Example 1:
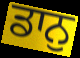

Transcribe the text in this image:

ਡਾਨੁ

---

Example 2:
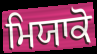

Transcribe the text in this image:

ਮਿਯਾਕੋ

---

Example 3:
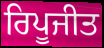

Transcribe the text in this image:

ਰਿਪੂਜੀਤ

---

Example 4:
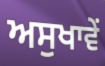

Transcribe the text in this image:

ਅਸੁਖਾਵੇਂ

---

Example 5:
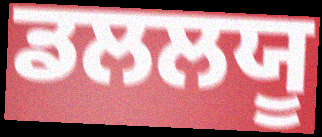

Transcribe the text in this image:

ਡਲਲਯੂ